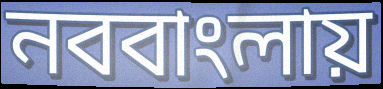
নববাংলায়